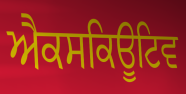
ਐਕਸਕਿਊਟਿਵ